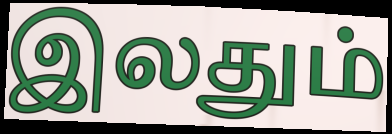
இலதும்